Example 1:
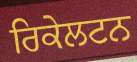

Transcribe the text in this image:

ਰਿਕੇਲਟਨ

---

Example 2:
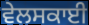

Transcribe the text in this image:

ਵੇਲਸਕਾਈ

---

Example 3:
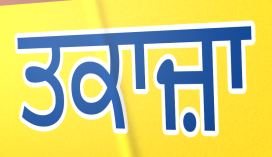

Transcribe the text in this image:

ਤਕਾਜ਼ਾ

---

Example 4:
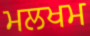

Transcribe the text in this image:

ਮਲਖਮ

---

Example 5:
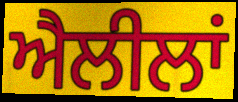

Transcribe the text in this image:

ਐਲੀਲਾਂ